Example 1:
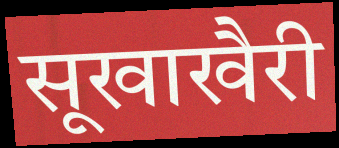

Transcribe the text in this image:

सूखाखैरी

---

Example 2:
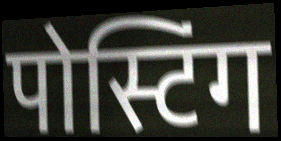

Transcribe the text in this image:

पोस्टिंग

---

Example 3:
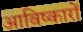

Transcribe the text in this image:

आविष्कारों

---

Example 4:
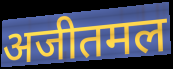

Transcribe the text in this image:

अजीतमल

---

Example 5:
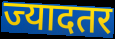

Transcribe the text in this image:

ज्यादतर